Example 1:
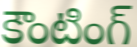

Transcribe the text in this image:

కౌంటింగ్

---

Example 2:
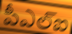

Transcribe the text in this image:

పీఎల్ఐ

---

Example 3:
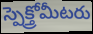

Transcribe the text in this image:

స్పెక్త్రోమీటరు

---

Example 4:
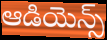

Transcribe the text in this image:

ఆడియెన్స్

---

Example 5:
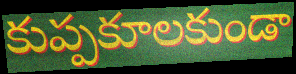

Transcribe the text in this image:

కుప్పకూలకుండా